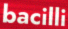
bacilli